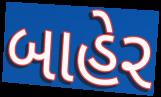
બાહેર